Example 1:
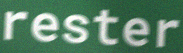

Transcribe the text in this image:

rester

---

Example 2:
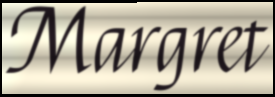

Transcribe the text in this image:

Margret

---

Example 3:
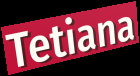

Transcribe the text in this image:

Tetiana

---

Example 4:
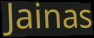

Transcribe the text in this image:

Jainas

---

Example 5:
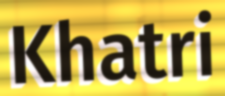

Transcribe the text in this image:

Khatri